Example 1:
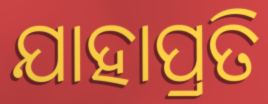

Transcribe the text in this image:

ଯାହାପ୍ରତି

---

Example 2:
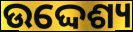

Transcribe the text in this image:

ଉଦ୍ଦେଶ୍ୟ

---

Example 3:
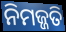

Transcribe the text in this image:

ନିମଜ୍ଜତି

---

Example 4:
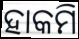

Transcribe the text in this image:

ହାକମି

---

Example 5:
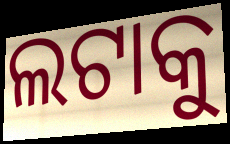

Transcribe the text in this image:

ଲଟାକୁ